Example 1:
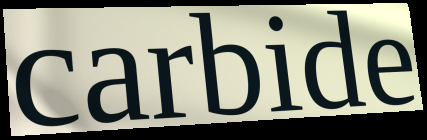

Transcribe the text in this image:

carbide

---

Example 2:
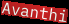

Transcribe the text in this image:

Avanthi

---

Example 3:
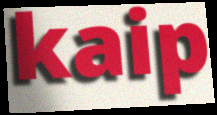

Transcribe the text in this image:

kaip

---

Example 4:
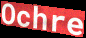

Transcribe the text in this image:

Ochre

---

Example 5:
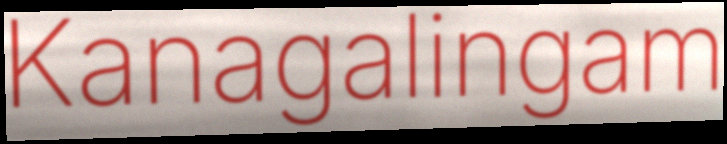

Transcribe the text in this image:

Kanagalingam